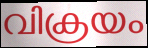
വിക്രയം